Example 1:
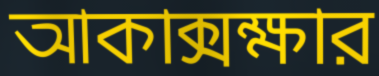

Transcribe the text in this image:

আকাক্সক্ষার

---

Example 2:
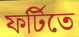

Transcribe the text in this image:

ফর্টিতে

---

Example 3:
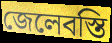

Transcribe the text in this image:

জেলেবস্তি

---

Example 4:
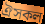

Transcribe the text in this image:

ঐসকল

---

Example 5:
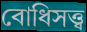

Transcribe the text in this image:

বোধিসত্ত্ব